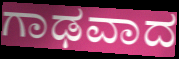
ಗಾಢವಾದ